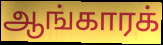
ஆங்காரக்